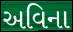
અવિના